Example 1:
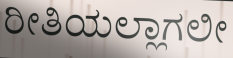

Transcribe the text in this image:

ರೀತಿಯಲ್ಲಾಗಲೀ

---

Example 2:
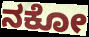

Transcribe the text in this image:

ನಕೋ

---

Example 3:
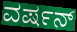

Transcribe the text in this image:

ವರ್ಷನ್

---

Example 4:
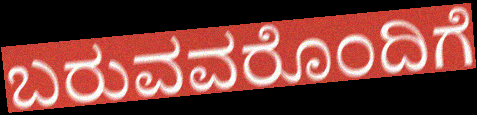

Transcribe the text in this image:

ಬರುವವರೊಂದಿಗೆ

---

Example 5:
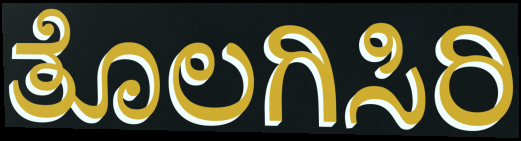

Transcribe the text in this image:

ತೊಲಗಿಸಿರಿ